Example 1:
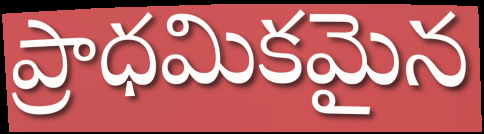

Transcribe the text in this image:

ప్రాధమికమైన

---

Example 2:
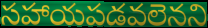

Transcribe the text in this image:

సహాయపడవలెనని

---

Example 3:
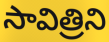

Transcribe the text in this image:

సావిత్రిని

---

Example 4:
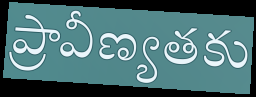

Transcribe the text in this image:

ప్రావీణ్యతకు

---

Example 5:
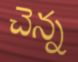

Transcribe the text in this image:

చెన్న